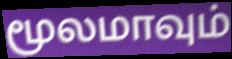
மூலமாவும்